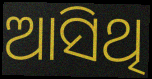
ଆସିଥି